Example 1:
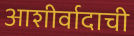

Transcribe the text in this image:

आशीर्वादाची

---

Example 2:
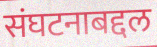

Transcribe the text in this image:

संघटनाबद्दल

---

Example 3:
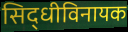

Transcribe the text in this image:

सिद्धीविनायक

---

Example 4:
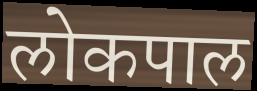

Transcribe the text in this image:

लोकपाल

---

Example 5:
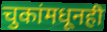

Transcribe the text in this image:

चुकांमधूनही